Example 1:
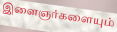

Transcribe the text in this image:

இளைஞர்களையும்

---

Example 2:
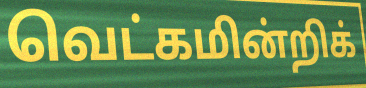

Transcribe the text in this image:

வெட்கமின்றிக்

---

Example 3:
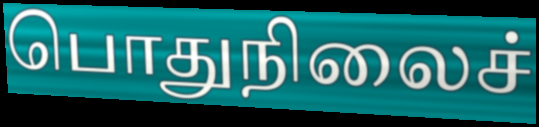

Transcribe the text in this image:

பொதுநிலைச்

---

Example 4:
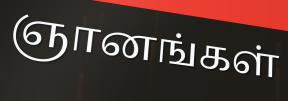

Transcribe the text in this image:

ஞானங்கள்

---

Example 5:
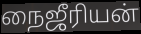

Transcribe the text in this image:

நைஜீரியன்